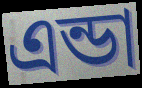
এন্ডা